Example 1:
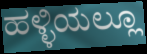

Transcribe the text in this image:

ಹಳ್ಳಿಯಲ್ಲೂ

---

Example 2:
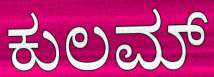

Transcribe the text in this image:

ಕುಲಮ್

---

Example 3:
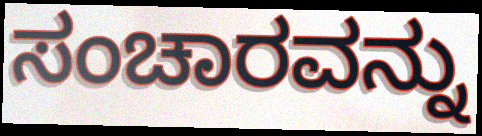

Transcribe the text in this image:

ಸಂಚಾರವನ್ನು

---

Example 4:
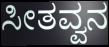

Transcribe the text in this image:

ಸೀತವ್ವನ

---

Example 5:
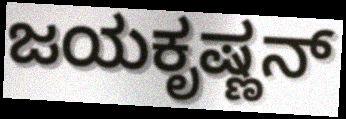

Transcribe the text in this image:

ಜಯಕೃಷ್ಣನ್